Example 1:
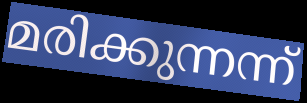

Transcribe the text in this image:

മരിക്കുന്നന്ന്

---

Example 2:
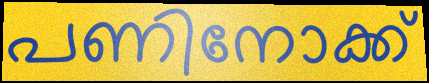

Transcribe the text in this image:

പണിനോക്ക്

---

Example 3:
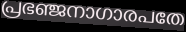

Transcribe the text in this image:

പ്രഭഞ്ജനാഗാരപതേ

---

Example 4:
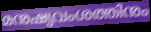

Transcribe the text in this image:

മനുഷ്യവംശത്തിനും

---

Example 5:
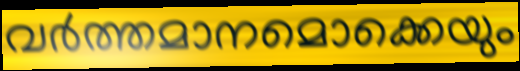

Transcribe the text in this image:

വർത്തമാനമൊക്കെയും